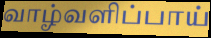
வாழ்வளிப்பாய்